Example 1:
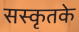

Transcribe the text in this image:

सस्कृतके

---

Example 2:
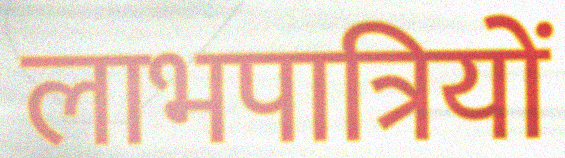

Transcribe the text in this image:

लाभपात्रियों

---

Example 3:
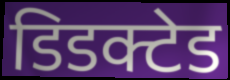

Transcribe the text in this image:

डिडक्टेड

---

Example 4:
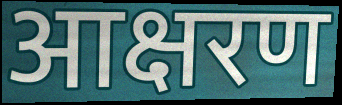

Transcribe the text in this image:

आक्षरण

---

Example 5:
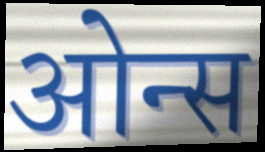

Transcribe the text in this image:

ओन्स